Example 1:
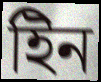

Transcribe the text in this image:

ইিন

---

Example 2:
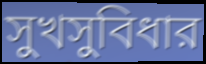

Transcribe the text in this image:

সুখসুবিধার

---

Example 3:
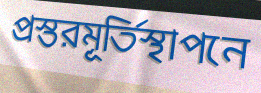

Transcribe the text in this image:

প্রস্তরমূর্তিস্থাপনে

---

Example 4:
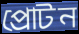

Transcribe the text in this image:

প্রোটন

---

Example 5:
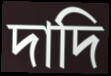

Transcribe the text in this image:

দাদি